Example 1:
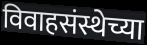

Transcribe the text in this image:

विवाहसंस्थेच्या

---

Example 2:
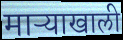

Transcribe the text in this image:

माऱ्याखाली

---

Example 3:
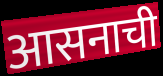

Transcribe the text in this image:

आसनाची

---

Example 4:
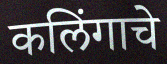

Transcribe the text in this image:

कलिंगाचे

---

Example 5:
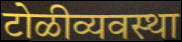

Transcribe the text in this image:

टोळीव्यवस्था